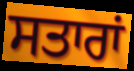
ਸਤਾਰਾਂ